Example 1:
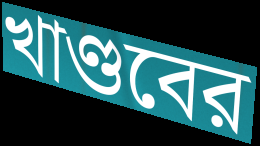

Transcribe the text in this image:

খাণ্ডবের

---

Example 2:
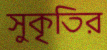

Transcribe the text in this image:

সুকৃতির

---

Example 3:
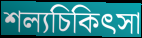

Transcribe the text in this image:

শল্যচিকিৎসা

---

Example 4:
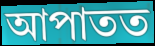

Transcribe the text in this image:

আপাতত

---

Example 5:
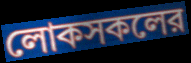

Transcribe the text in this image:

লোকসকলের